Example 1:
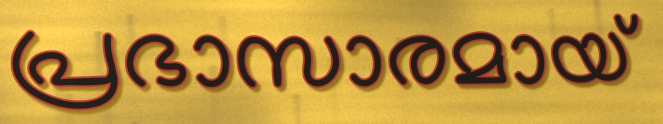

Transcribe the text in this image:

പ്രഭാസാരമായ്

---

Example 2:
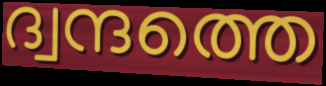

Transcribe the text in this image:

ദ്വന്ദത്തെ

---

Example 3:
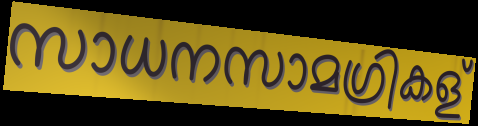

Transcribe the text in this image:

സാധനസാമഗ്രികള്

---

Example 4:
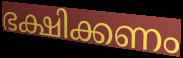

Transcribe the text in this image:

ഭക്ഷിക്കണം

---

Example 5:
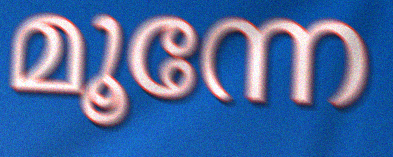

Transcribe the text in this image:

മൂന്നേ